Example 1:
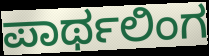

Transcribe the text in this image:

ಪಾರ್ಥಲಿಂಗ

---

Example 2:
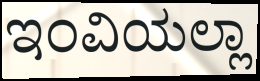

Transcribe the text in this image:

ಇಂವಿಯಲ್ಲಾ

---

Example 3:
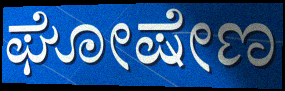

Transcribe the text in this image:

ಘೋಷೇಣ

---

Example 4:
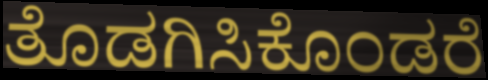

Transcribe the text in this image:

ತೊಡಗಿಸಿಕೊಂಡರೆ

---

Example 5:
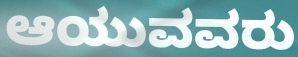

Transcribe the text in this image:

ಆಯುವವರು